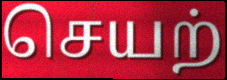
செயற்